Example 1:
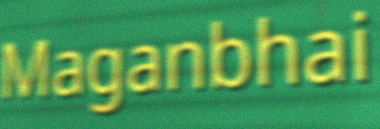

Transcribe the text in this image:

Maganbhai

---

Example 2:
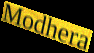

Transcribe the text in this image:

Modhera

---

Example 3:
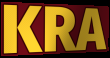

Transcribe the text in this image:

KRA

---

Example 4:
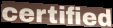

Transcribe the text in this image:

certified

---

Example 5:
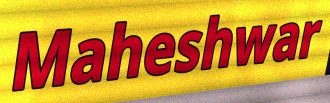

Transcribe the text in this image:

Maheshwar